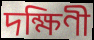
দক্ষিণী